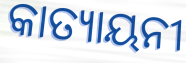
କାତ୍ୟାୟନୀ